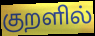
குறளில்